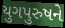
યુગપુરુષને